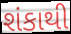
શંકાથી